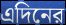
এদিনের